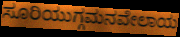
ಸೂರಿಯುಗ್ಗಮನವೇಲಾಯ